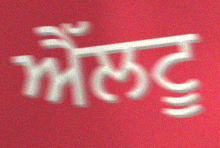
ਐੱਲਟੂ